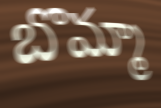
బొమ్మా